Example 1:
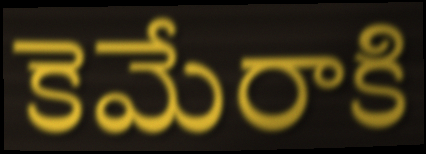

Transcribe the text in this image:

కెమేరాకి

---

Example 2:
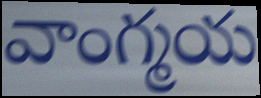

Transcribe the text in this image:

వాంగ్మయ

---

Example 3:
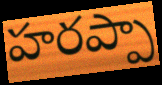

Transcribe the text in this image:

హరప్పా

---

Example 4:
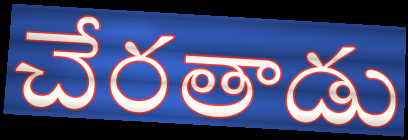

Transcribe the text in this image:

చేరతాడు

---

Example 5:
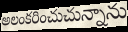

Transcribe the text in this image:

అలంకరించుచున్నాను